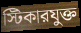
স্টিকারযুক্ত